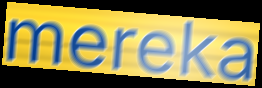
mereka